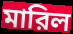
মারিল